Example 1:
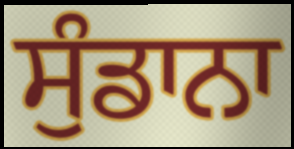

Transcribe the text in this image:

ਸੁੰਡਾਨਾ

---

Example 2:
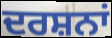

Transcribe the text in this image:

ਦਰਸ਼ਨਾਂ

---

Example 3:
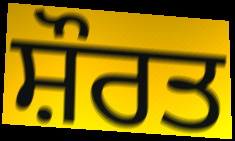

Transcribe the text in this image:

ਸ਼ੌਰਤ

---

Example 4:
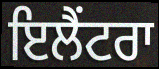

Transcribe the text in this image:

ਇਲੈਂਟਰਾ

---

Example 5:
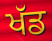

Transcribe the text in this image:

ਖੱਡ